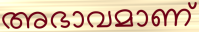
അഭാവമാണ്